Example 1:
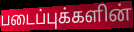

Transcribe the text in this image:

படைப்புக்களின்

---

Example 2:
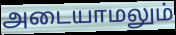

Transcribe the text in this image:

அடையாமலும்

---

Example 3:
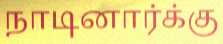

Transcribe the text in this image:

நாடினார்க்கு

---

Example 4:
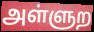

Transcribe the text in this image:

அள்ளுற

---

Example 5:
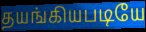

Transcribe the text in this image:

தயங்கியபடியே